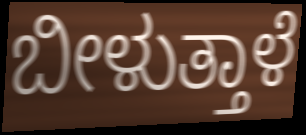
ಬೀಳುತ್ತಾಳೆ